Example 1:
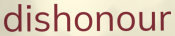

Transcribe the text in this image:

dishonour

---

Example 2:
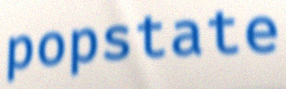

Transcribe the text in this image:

popstate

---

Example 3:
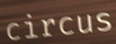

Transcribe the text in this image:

circus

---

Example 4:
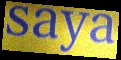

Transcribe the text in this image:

saya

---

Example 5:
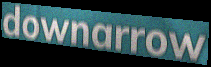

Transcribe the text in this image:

downarrow